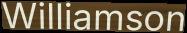
Williamson